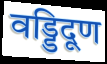
वड्डिदूण